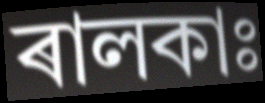
ৰালকাঃ